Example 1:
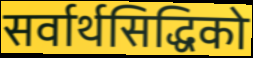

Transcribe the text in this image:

सर्वार्थसिद्धिको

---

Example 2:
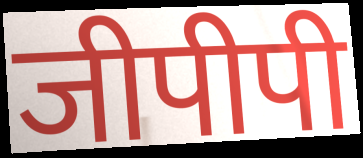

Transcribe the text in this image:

जीपीपी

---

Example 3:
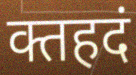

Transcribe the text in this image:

क्तहदं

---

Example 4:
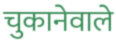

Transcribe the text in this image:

चुकानेवाले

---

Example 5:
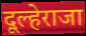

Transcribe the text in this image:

दूल्हेराजा